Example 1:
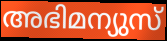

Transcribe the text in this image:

അഭിമന്യുസ്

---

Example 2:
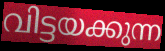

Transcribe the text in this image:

വിട്ടയക്കുന്ന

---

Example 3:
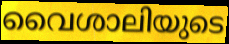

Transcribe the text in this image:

വൈശാലിയുടെ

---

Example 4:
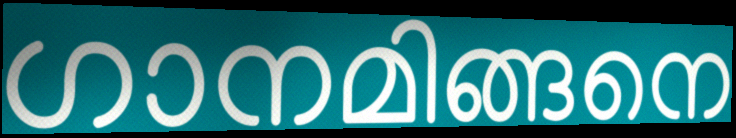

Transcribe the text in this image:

ഗാനമിങ്ങനെ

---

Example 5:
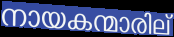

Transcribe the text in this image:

നായകന്മാരില്